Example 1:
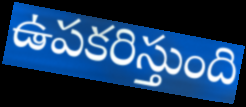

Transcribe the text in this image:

ఉపకరిస్తుంది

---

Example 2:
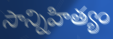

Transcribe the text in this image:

సాన్నిహిత్యం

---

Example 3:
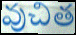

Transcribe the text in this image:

వుచిత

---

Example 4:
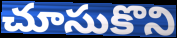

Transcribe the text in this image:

చూసుకొని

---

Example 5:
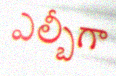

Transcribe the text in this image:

ఎల్బీగా